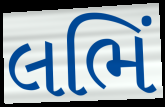
લભિં